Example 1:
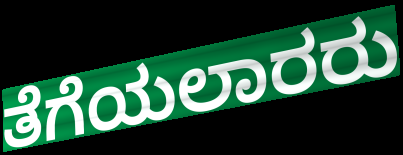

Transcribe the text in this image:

ತೆಗೆಯಲಾರರು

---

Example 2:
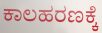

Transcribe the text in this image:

ಕಾಲಹರಣಕ್ಕೆ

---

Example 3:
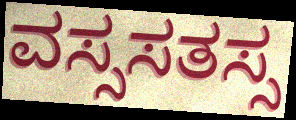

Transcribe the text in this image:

ವಸ್ಸಸತಸ್ಸ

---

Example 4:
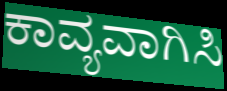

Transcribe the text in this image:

ಕಾವ್ಯವಾಗಿಸಿ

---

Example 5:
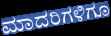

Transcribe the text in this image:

ಮಾದರಿಗಳಿಗೂ